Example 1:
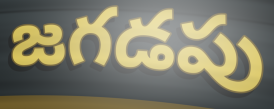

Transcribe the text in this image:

జగడపు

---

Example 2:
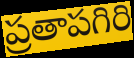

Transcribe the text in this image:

ప్రతాపగిరి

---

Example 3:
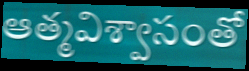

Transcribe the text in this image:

ఆత్మవిశ్వాసంతో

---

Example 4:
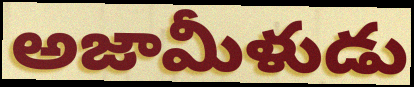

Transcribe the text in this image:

అజామీళుడు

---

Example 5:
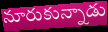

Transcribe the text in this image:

నూరుకున్నాడు